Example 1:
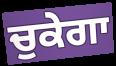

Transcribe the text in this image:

ਚੁਕੇਗਾ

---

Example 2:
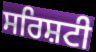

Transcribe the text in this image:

ਸਰਿਸ਼ਟੀ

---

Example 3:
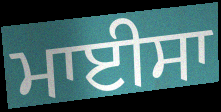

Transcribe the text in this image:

ਮਾਈਸਾ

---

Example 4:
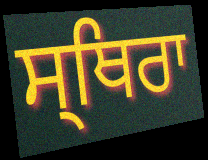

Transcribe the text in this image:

ਸ੍ਥਿਰਾ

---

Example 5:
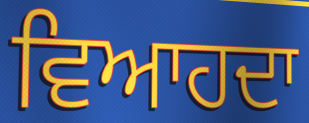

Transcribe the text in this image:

ਵਿਆਹਦਾ